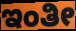
ಇಂತೀ